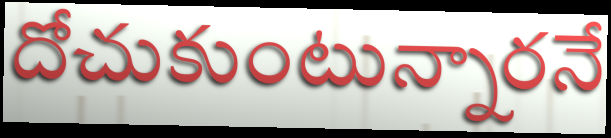
దోచుకుంటున్నారనే